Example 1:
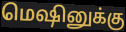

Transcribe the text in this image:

மெஷினுக்கு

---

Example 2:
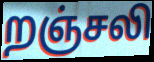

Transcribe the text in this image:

றஞ்சலி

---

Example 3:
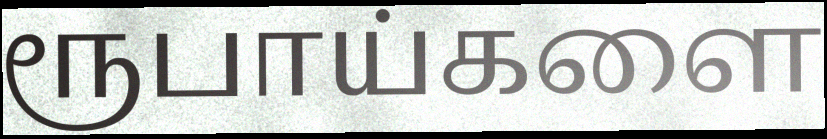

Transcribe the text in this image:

ரூபாய்களை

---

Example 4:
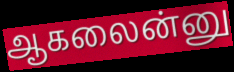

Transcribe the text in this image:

ஆகலைன்னு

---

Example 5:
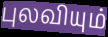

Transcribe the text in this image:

புலவியும்